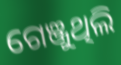
ଗେଞ୍ଜୁଥିଲି